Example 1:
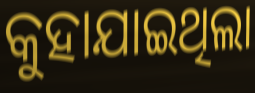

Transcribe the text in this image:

କୁହାଯାଇଥିଲା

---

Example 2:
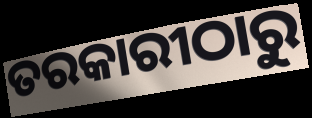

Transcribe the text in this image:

ତରକାରୀଠାରୁ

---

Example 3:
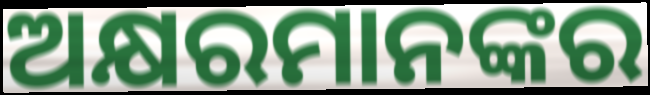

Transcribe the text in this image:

ଅକ୍ଷରମାନଙ୍କର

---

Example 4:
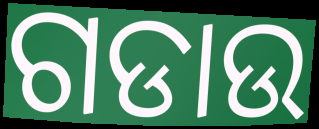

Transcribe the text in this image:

ଗଡାଉ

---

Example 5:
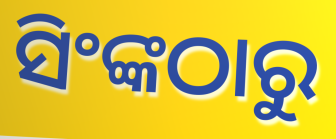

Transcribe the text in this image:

ସିଂଙ୍କଠାରୁ